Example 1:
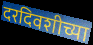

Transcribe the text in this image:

दरदिवशीच्या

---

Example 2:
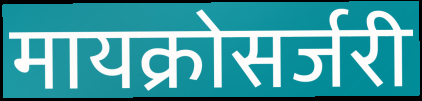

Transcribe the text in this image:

मायक्रोसर्जरी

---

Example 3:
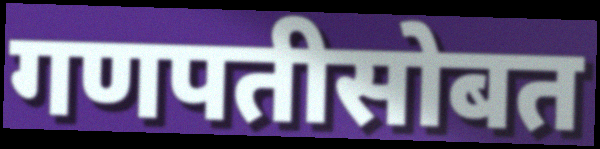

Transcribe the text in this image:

गणपतीसोबत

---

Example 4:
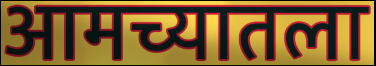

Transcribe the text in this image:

आमच्यातला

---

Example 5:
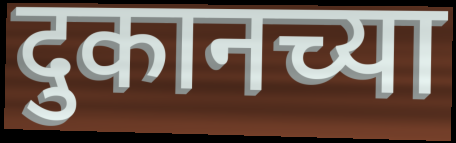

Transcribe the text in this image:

दुकानच्या